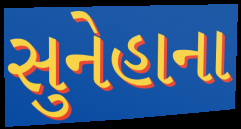
સુનેહાના